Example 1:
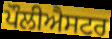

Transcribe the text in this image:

ਪੌਲੀਐਸਟਰ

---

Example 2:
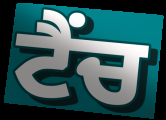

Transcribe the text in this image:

ਟੈਂਚ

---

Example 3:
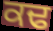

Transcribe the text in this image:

ਕਢ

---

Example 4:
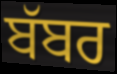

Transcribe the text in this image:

ਬੱਬਰ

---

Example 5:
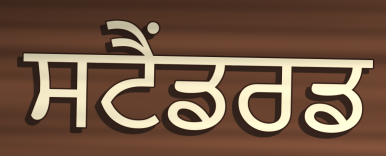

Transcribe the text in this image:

ਸਟੈਂਡਰਡ